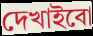
দেখাইবো